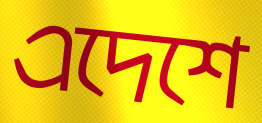
এদেশে